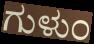
ಗುಳುಂ